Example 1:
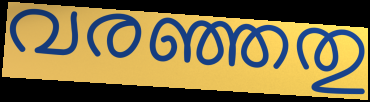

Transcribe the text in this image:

വരഞ്ഞതു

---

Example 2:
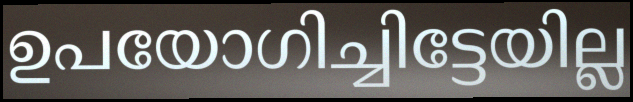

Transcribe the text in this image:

ഉപയോഗിച്ചിട്ടേയില്ല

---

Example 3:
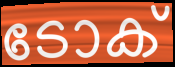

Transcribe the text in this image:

ടോക്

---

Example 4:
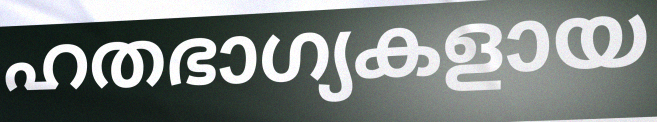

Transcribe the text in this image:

ഹതഭാഗ്യകളായ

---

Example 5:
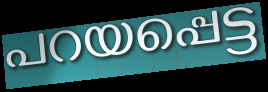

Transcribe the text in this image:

പറയപ്പെട്ട